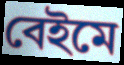
বেইমে